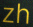
zh